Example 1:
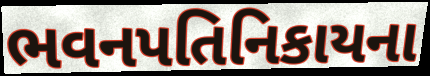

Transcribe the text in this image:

ભવનપતિનિકાયના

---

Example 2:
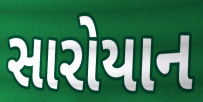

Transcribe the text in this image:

સારોયાન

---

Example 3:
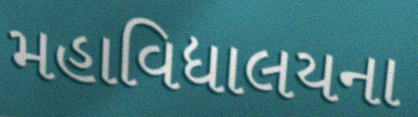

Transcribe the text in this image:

મહાવિદ્યાલયના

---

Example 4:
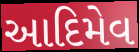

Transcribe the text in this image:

આદિમેવ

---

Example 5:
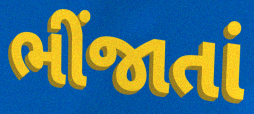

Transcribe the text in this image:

ભીંજાતાં